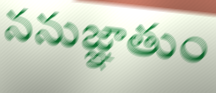
ననుజ్ఞాతుం